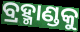
ବ୍ରହ୍ମାଣ୍ଡକୁ